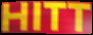
HITT